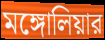
মঙ্গোলিয়ার